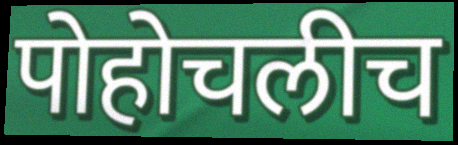
पोहोचलीच